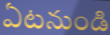
ఏటనుండి